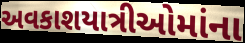
અવકાશયાત્રીઓમાંના